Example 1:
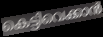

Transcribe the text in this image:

കെട്ടിവെക്കാൻ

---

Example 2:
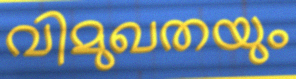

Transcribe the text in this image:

വിമുഖതയും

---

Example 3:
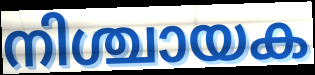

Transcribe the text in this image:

നിശ്ചായക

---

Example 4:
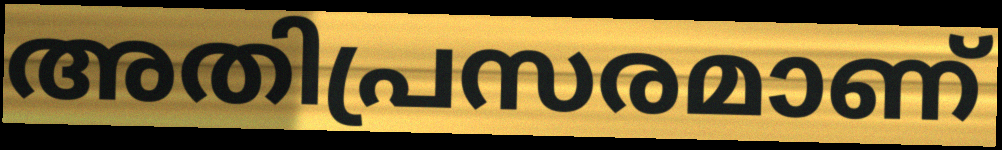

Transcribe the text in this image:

അതിപ്രസരമാണ്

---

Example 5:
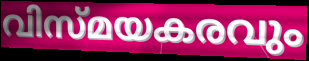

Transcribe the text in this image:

വിസ്മയകരവും